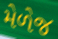
મેળેજ